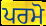
ਪਰਮੋ